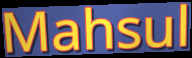
Mahsul